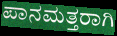
ಪಾನಮತ್ತರಾಗಿ